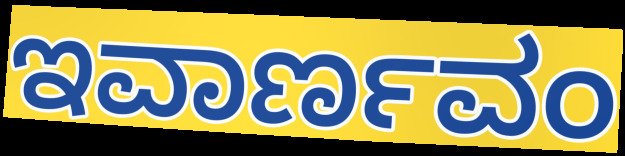
ಇವಾರ್ಣವಂ